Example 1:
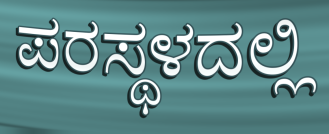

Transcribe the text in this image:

ಪರಸ್ಥಳದಲ್ಲಿ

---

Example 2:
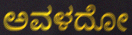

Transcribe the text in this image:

ಅವಳದೋ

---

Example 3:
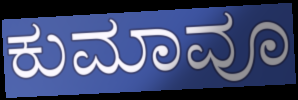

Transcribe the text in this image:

ಕುಮಾವೂ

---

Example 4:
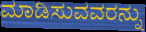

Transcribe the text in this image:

ಮಾಡಿಸುವವರನ್ನು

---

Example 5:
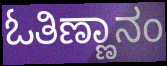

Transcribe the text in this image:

ಓತಿಣ್ಣಾನಂ